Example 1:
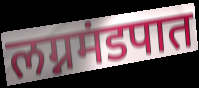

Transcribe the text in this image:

लग्नमंडपात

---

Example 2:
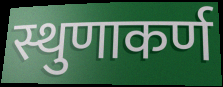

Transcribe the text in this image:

स्थुणाकर्ण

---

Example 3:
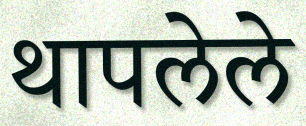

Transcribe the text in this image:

थापलेले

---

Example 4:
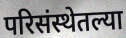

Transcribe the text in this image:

परिसंस्थेतल्या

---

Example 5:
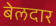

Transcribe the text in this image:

बेलदार